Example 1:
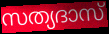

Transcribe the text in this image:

സത്യദാസ്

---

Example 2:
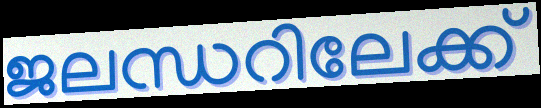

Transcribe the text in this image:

ജലന്ധറിലേക്ക്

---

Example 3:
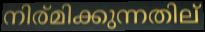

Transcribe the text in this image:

നിര്മിക്കുന്നതില്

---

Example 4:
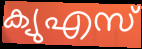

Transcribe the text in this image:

ക്യുഎസ്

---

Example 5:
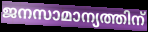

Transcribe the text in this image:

ജനസാമാന്യത്തിന്